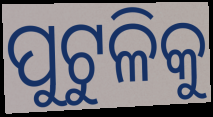
ପୁଟୁଳିକୁ